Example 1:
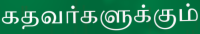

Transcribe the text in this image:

கதவர்களுக்கும்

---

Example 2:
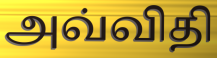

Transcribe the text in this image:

அவ்விதி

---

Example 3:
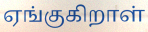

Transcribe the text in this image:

ஏங்குகிறாள்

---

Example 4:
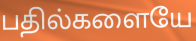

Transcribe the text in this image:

பதில்களையே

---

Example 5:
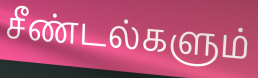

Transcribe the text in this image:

சீண்டல்களும்